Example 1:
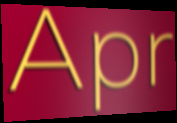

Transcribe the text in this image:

Apr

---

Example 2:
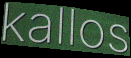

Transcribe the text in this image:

kallos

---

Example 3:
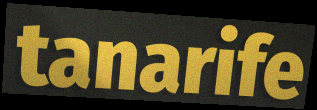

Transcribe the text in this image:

tanarife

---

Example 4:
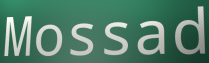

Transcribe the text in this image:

Mossad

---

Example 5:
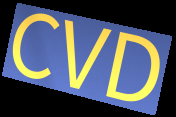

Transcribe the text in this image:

CVD